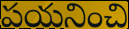
పయనించి